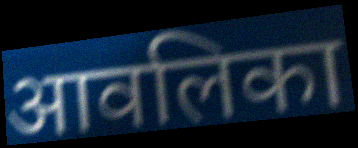
आवलिका